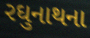
રઘુનાથના